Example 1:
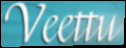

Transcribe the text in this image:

Veettu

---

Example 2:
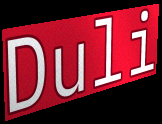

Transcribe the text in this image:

Duli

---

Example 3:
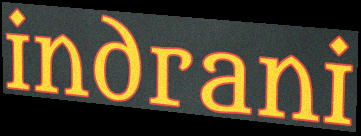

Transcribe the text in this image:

indrani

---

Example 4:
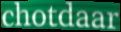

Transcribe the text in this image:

chotdaar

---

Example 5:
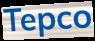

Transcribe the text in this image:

Tepco